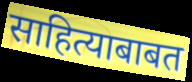
साहित्याबाबत